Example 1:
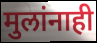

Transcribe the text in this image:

मुलांनाही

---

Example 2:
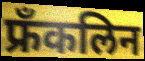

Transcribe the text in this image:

फ्रँकलिन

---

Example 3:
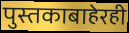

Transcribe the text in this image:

पुस्तकाबाहेरही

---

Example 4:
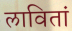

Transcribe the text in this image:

लावितां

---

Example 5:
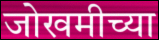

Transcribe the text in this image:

जोखमीच्या